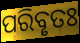
ପରିବୃତଃ